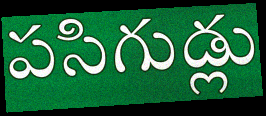
పసిగుడ్లు